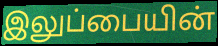
இலுப்பையின்